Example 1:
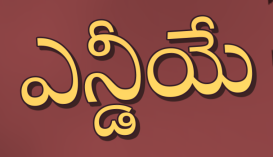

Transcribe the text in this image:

ఎన్డీయే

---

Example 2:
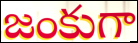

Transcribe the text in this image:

జంకుగా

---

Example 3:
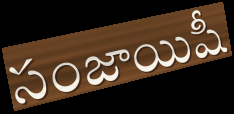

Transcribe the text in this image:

సంజాయిషీ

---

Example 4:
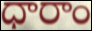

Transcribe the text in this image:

ధారాం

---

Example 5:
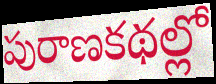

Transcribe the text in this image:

పురాణకథల్లో